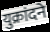
युक्रांदने